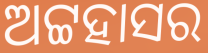
ଅଟ୍ଟହାସର